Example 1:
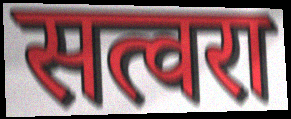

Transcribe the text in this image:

सत्वरा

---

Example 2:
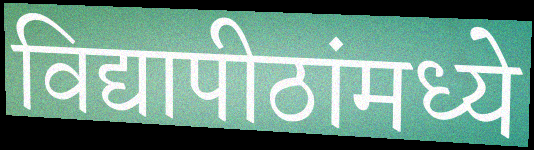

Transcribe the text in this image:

विद्यापीठांमध्ये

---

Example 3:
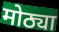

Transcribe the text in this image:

मोठ्या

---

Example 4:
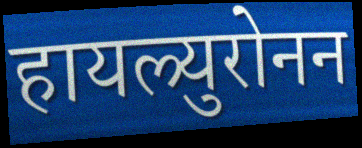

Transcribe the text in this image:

हायल्युरोनन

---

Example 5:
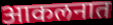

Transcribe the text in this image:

आकलनात